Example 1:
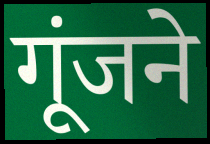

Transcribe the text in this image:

गूंजने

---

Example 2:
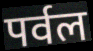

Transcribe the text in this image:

पर्वल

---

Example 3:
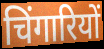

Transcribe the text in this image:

चिंगारियों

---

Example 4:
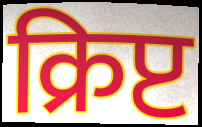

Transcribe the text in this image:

क्रिप्ट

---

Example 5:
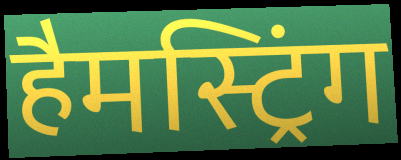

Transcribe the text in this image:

हैमस्ट्रिंग